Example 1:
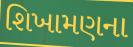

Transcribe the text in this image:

શિખામણના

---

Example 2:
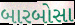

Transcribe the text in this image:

બારબોસા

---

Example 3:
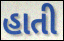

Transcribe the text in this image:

હાતી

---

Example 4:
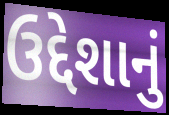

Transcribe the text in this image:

ઉદ્દેશાનું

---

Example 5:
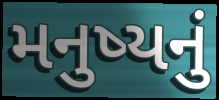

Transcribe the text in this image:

મનુષ્યનું